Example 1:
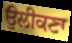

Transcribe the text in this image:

ਉਲੀਕਣਾ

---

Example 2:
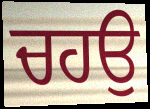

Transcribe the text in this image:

ਚਹਉ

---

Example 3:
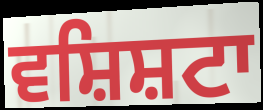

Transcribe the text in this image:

ਵਸ਼ਿਸ਼ਟਾ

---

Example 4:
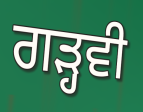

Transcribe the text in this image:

ਗੜ੍ਹਵੀ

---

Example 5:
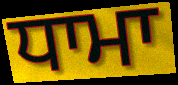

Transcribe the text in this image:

ਧਾਮਾ